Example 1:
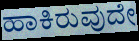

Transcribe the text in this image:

ಹಾಕಿರುವುದೇ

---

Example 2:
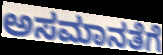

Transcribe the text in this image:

ಅಸಮಾನತೆಗೆ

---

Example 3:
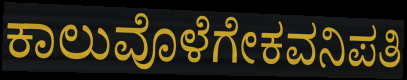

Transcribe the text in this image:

ಕಾಲುವೊಳೆಗೇಕವನಿಪತಿ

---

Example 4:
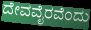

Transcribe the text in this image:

ದೇವವೈರವೆಂದು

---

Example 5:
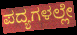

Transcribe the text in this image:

ಪದ್ಯಗಳಲ್ಲೇ